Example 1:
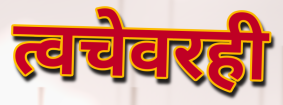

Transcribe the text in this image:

त्वचेवरही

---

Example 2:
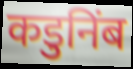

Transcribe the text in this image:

कडुनिंब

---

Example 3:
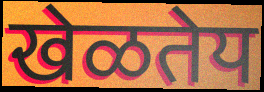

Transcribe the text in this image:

खेळतेय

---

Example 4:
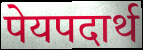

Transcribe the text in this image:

पेयपदार्थ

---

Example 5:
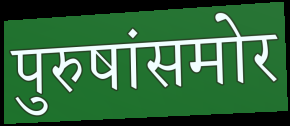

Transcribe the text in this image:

पुरुषांसमोर